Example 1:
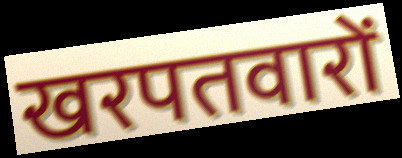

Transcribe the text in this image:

खरपतवारों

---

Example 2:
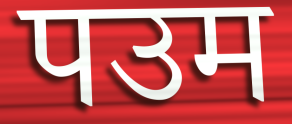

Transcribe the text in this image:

पउम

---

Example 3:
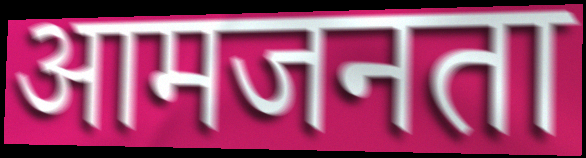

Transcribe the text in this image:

आमजनता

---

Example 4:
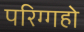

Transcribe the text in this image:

परिग्गहो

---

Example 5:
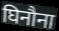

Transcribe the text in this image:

घिनौना